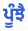
ਪੂੰਝੈ